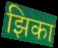
झिका